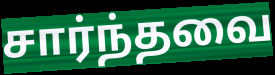
சார்ந்தவை